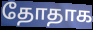
தோதாக